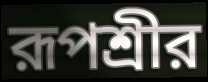
রূপশ্রীর